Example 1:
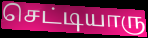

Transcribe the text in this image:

செட்டியாரு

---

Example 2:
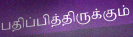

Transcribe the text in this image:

பதிப்பித்திருக்கும்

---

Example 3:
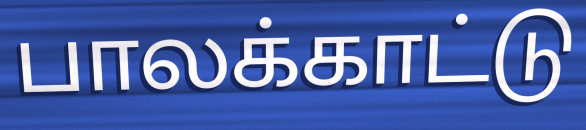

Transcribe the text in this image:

பாலக்காட்டு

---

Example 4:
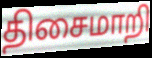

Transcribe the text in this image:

திசைமாறி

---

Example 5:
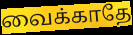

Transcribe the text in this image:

வைக்காதே